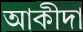
আকীদা